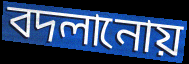
বদলানোয়